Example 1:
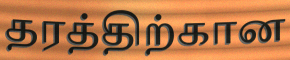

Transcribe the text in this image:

தரத்திற்கான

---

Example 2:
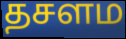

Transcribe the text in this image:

தசளம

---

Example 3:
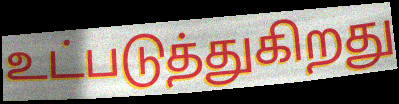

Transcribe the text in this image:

உட்படுத்துகிறது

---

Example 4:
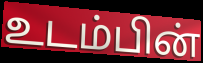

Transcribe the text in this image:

உடம்பின்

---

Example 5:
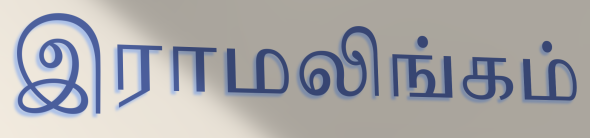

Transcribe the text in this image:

இராமலிங்கம்